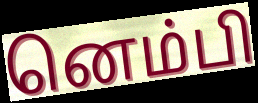
னெம்பி